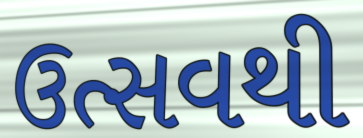
ઉત્સવથી